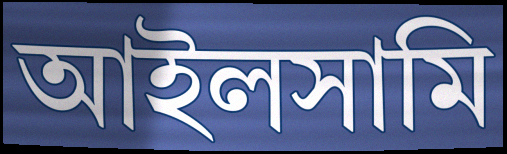
আইলসামি